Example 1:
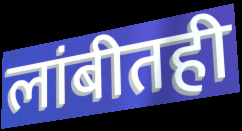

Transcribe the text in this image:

लांबीतही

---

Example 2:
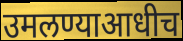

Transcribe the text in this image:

उमलण्याआधीच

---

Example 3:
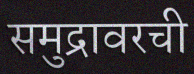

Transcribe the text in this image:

समुद्रावरची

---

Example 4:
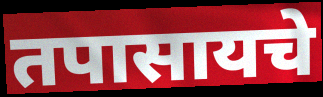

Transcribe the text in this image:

तपासायचे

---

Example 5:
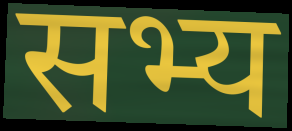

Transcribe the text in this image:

सभ्य